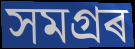
সমগ্ৰৰ